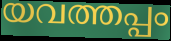
യവത്തപ്പം